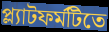
প্ল্যাটফর্মটিতে